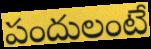
పందులంటే